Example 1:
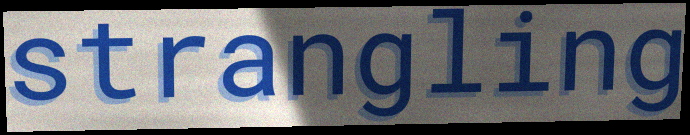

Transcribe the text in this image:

strangling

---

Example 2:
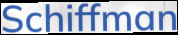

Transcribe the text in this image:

Schiffman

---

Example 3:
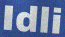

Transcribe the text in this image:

Idli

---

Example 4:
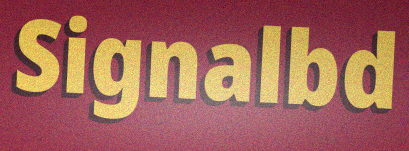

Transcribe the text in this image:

Signalbd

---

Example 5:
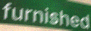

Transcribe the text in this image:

furnished